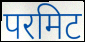
परमिट